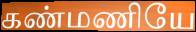
கண்மணியே